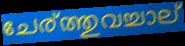
ചേര്ത്തുവച്ചാല്